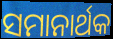
ସମାନାର୍ଥକ